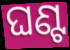
ଘଣ୍ଟ